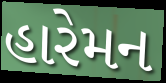
હારેમન